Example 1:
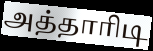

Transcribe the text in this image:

அத்தாரிடி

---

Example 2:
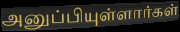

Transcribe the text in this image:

அனுப்பியுள்ளார்கள்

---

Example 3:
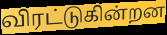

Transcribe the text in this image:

விரட்டுகின்றன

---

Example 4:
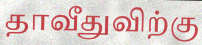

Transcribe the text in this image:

தாவீதுவிற்கு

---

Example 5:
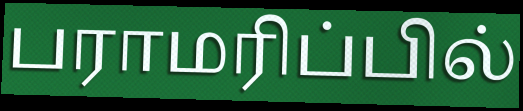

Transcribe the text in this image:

பராமரிப்பில்